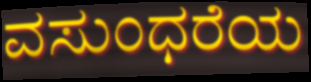
ವಸುಂಧರೆಯ